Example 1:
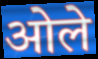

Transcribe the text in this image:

ओले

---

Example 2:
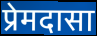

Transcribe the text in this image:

प्रेमदासा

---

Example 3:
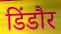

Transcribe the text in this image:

डिंडौर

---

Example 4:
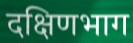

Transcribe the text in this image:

दक्षिणभाग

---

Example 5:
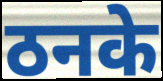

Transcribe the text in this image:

ठनके